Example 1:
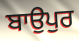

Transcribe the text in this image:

ਬਾਉਪੁਰ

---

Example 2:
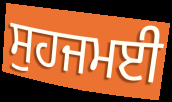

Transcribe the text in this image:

ਸੁਹਜਮਈ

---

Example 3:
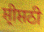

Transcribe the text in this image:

ਸ਼੍ਰੀਸ਼ਠੀ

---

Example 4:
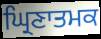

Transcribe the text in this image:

ਘ੍ਰਿਣਾਤਮਕ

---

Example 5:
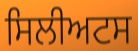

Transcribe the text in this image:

ਸਿਲੀਅਟਸ